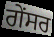
ਗੇਂਸਰ